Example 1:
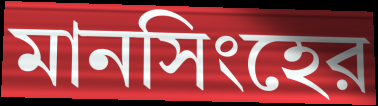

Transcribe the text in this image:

মানসিংহের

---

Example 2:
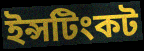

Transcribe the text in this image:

ইন্সটিংকট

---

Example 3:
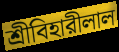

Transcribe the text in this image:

শ্রীবিহারীলাল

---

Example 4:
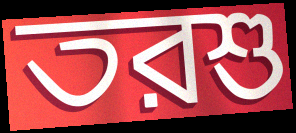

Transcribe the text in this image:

তরশু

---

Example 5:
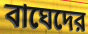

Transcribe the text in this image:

বাঘেদের